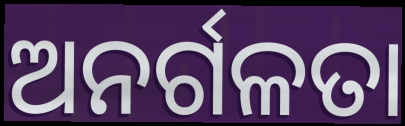
ଅନର୍ଗଳତା